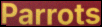
Parrots